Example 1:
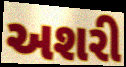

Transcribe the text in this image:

અશરી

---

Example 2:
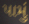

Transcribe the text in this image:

પામું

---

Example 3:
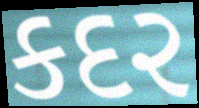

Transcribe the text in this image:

કદર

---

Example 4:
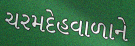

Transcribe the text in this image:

ચરમદેહવાળાને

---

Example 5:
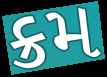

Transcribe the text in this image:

ક્રમ